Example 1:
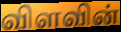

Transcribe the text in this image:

விளவின்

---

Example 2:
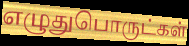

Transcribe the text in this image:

எழுதுபொருட்கள்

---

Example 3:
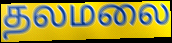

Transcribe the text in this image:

தலமலை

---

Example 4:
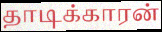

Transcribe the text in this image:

தாடிக்காரன்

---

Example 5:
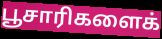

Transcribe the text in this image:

பூசாரிகளைக்